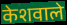
केशवाले